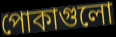
পোকাগুলো